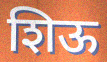
शिऊ